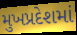
મુખપ્રદેશમાં